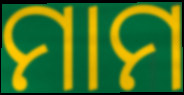
ମାମ